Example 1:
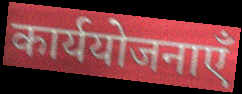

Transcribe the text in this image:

कार्ययोजनाएँ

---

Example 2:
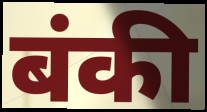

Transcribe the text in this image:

बंकी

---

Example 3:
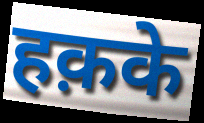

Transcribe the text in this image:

हक़के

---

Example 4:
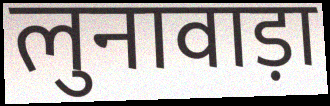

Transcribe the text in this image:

लुनावाड़ा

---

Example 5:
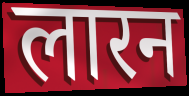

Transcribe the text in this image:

लारन